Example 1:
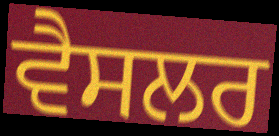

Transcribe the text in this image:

ਵੈਸਲਰ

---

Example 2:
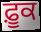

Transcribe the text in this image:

ਫ਼ੂਕ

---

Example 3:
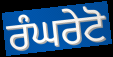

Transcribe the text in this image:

ਰੰਘਰੇਟੋ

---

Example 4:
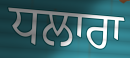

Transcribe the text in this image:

ਧਲਾਰਾ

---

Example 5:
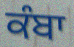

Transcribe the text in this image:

ਕੰਬਾ